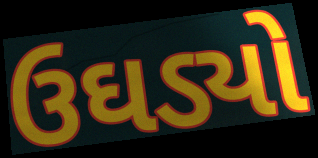
ઉઘડ્યો